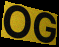
OG